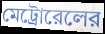
মেট্রোরেলের